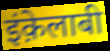
इंक़ेलाबी